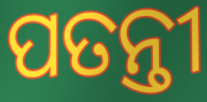
ପତନ୍ତୀ